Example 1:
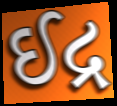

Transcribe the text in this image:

ઈદ્ર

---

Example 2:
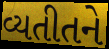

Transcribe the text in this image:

વ્યતીતને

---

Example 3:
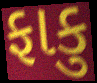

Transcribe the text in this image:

ફાકુ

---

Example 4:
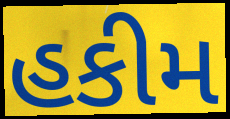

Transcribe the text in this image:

હકીમ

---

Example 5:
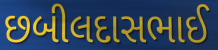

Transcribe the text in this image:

છબીલદાસભાઈ